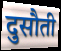
दुसौती